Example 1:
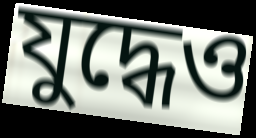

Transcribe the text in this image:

যুদ্ধেও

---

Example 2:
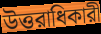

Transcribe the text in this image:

উত্তরাধিকারী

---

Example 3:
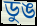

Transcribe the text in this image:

ডুঙ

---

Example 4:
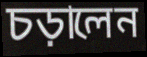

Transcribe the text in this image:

চড়ালেন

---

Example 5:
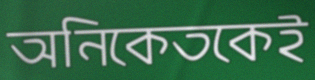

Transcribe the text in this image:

অনিকেতকেই